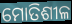
ମୋତିଶୀଳ